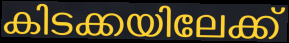
കിടക്കയിലേക്ക്